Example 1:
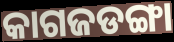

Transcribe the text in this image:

କାଗଜଡଙ୍ଗା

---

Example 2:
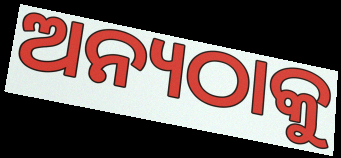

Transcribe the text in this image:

ଅନ୍ୟଠାକୁ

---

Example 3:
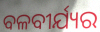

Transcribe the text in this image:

ବଳବୀର୍ଯ୍ୟର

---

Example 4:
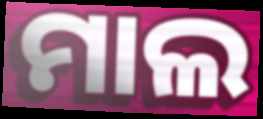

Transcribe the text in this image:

ମାଲ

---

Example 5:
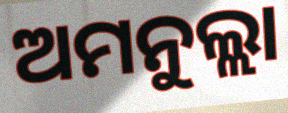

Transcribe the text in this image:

ଅମନୁଲ୍ଲା